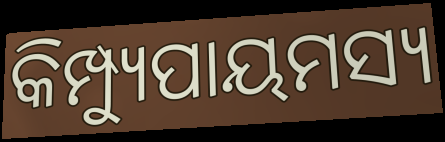
କିମ୍ପ୍ୟୁପାୟମସ୍ୟ